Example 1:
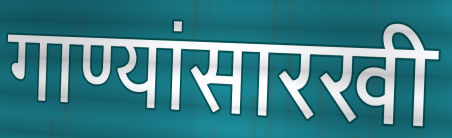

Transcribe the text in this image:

गाण्यांसारखी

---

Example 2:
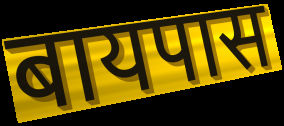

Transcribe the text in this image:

बायपास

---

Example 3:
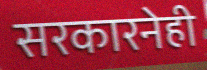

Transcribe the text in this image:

सरकारनेही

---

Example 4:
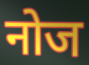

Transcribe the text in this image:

नोज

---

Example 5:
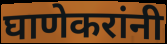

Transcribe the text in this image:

घाणेकरांनी